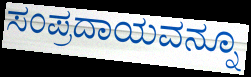
ಸಂಪ್ರದಾಯವನ್ನೂ